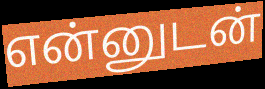
என்னுடன்